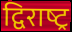
द्विराष्ट्र